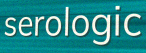
serologic